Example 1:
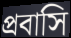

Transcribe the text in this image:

প্রবাসি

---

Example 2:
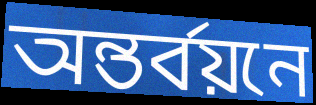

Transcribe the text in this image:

অন্তর্বয়নে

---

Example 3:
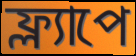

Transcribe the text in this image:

ফ্ল্যাপে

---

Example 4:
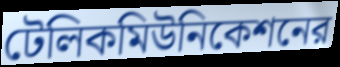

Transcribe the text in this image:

টেলিকমিউনিকেশনের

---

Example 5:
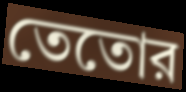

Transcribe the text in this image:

তেতোর